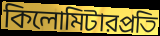
কিলোমিটারপ্রতি